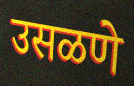
उसळणे